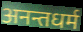
अनन्तधर्म